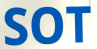
SOT